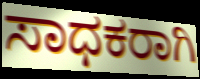
ಸಾಧಕರಾಗಿ